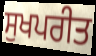
ਸੁਖਪਰੀਤ